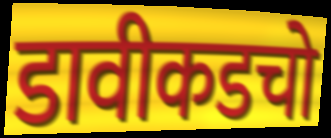
डावीकडचो